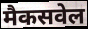
मैकसवेल